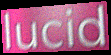
lucid